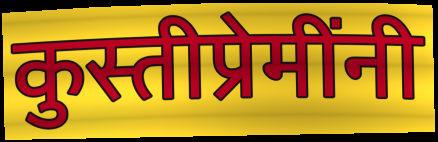
कुस्तीप्रेमींनी